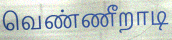
வெண்ணீறாடி